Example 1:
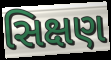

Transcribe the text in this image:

સિક્ષણ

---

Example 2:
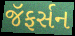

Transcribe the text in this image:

જૅફર્સન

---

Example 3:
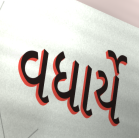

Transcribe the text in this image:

વધાર્યે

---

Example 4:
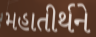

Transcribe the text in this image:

મહાતીર્થને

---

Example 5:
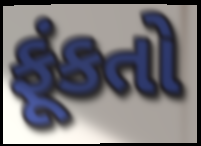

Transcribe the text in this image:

ફૂંકતો